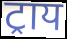
ट्राय